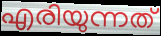
എരിയുന്നത്